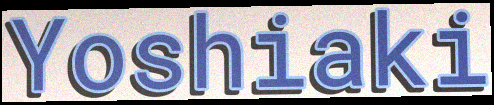
Yoshiaki